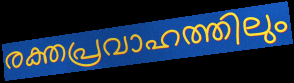
രക്തപ്രവാഹത്തിലും